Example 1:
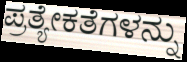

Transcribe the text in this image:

ಪ್ರತ್ಯೇಕತೆಗಳನ್ನು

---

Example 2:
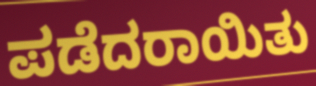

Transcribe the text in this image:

ಪಡೆದರಾಯಿತು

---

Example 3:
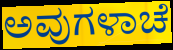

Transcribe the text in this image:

ಅವುಗಳಾಚೆ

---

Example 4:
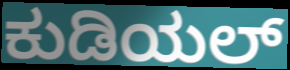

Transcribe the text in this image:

ಕುಡಿಯಲ್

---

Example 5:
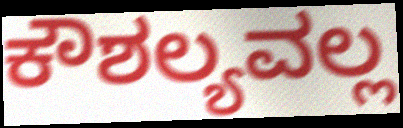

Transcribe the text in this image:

ಕೌಶಲ್ಯವಲ್ಲ